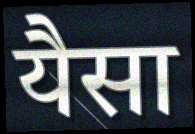
यैसा